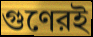
গুণেরই